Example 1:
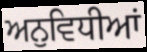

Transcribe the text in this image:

ਅਨੁਵਿਧੀਆਂ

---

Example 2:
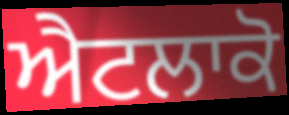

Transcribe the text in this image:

ਐਟਲਾਕੋ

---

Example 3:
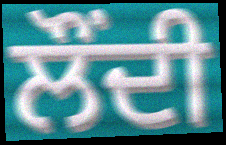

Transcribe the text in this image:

ਲੌਂਦੀ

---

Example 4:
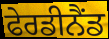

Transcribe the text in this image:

ਫੇਰਡੀਨੈਂਡ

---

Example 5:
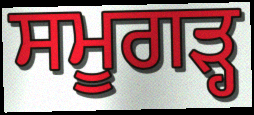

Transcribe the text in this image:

ਸਮੂਗੜ੍ਹ